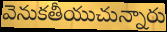
వెనుకతీయుచున్నారు